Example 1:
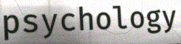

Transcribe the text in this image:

psychology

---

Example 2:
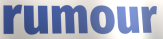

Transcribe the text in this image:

rumour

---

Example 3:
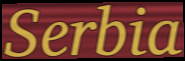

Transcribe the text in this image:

Serbia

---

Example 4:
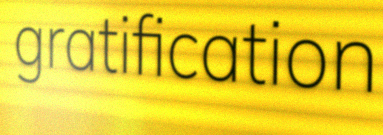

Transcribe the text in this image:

gratification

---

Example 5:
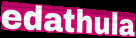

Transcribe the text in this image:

edathula